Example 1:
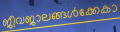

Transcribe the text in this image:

ജീവജാലങ്ങൾക്കേകാ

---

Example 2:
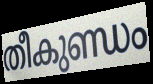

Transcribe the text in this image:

തീകുണ്ഡം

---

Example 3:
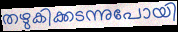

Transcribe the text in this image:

തഴുകിക്കടന്നുപോയി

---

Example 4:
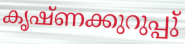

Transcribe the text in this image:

കൃഷ്ണക്കുറുപ്പു്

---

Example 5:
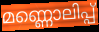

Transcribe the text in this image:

മണ്ണൊലിപ്പ്